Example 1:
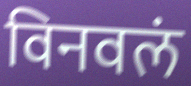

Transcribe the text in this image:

विनवलं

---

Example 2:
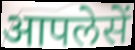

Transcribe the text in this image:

आपलेसें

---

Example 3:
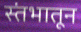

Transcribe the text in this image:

स्तंभातून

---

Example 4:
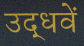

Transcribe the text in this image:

उद्धवें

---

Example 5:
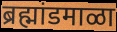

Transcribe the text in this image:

ब्रह्मांडमाळा